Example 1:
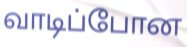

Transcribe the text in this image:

வாடிப்போன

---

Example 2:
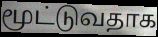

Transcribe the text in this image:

மூட்டுவதாக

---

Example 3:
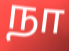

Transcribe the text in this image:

நா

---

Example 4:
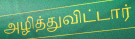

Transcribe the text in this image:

அழித்துவிட்டார்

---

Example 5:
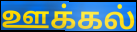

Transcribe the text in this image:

ஊக்கல்